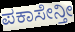
ಪಕಾಸೇನ್ತೀ